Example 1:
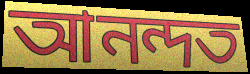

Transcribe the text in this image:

আনন্দত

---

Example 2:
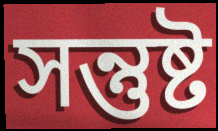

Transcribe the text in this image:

সন্তুষ্ট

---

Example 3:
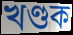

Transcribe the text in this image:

খণ্ডক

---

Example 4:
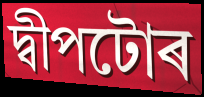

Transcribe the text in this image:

দ্বীপটোৰ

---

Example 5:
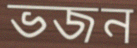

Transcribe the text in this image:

ভজন